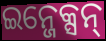
ଇନ୍ଜେକ୍ସନ୍